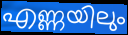
എണ്ണയിലും